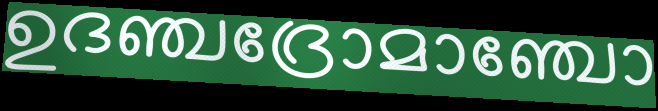
ഉദഞ്ചദ്രോമാഞ്ചോ